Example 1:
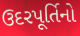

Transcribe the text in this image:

ઉદરપૂર્તિનો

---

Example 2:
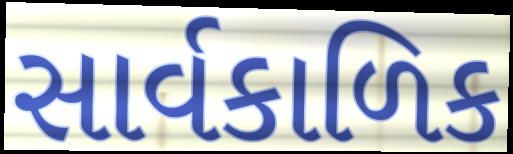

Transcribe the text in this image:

સાર્વકાળિક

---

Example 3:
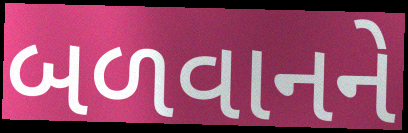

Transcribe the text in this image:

બળવાનને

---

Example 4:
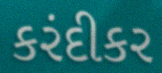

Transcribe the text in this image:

કરંદીકર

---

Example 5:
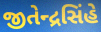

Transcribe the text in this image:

જીતેન્દ્રસિંહે